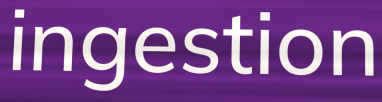
ingestion